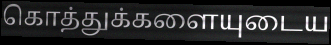
கொத்துக்களையுடைய